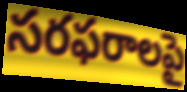
సరఫరాలపై